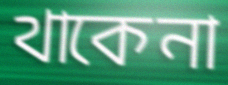
থাকেনা